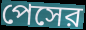
পেসের